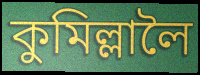
কুমিল্লালৈ